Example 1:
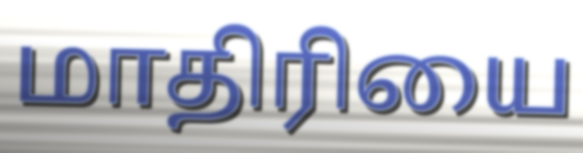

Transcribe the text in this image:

மாதிரியை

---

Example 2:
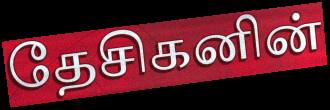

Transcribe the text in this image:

தேசிகனின்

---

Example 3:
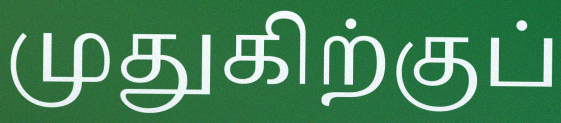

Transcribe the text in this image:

முதுகிற்குப்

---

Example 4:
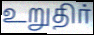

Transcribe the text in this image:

உறுதிர்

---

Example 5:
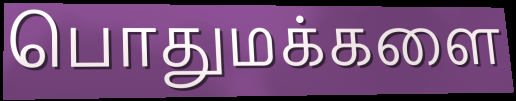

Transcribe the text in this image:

பொதுமக்களை